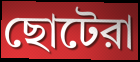
ছোটেরা